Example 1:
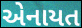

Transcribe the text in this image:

એનાયત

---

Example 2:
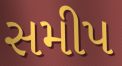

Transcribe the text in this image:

સમીપ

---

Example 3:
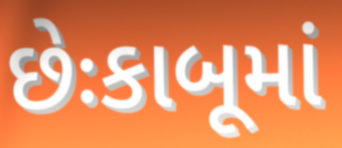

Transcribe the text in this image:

છેઃકાબૂમાં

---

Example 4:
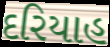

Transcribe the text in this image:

દરિયાહ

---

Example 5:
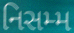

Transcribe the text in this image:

નિસમ્મ